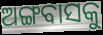
ଅଙ୍ଗବାସକୁ